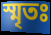
স্মৃতঃ